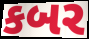
કબર